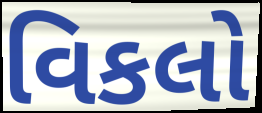
વિકલો